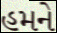
હમને